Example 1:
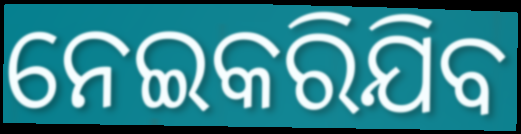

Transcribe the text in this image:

ନେଇକରିଯିବ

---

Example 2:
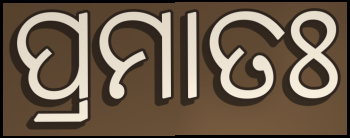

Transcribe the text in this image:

ପ୍ରମାତଃ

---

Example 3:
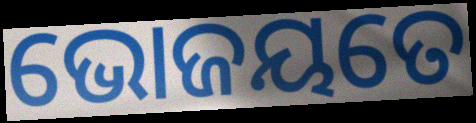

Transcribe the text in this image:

ଭୋଜୟତେ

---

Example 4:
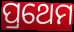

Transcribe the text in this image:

ପ୍ରଥେମ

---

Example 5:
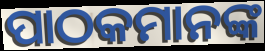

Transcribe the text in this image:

ପାଠକମାନଙ୍କ